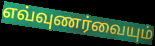
எவ்வுணர்வையும்